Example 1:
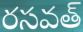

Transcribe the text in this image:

రసవత్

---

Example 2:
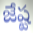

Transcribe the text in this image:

జేష్ట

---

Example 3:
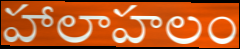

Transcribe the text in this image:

హాలాహలం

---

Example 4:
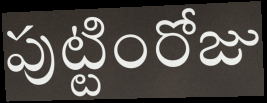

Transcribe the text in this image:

పుట్టింరోజు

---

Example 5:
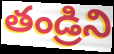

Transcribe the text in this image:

తండ్రిని